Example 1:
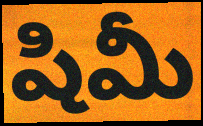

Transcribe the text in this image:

షిమీ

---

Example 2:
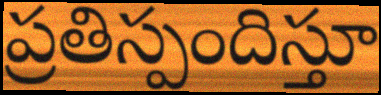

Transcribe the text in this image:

ప్రతిస్పందిస్తూ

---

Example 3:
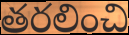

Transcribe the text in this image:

తరలించి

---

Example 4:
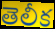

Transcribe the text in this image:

తెలీక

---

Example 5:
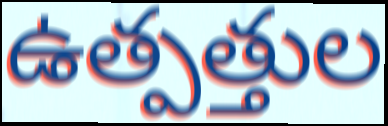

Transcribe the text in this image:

ఉత్పత్తుల